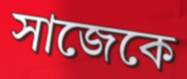
সাজেকে